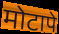
मोटापे